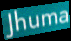
Jhuma